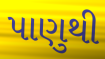
પાણુથી